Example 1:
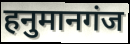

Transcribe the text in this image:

हनुमानगंज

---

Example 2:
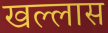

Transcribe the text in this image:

खल्लास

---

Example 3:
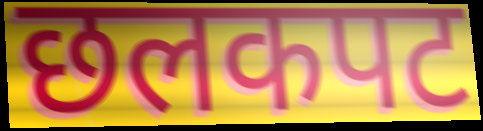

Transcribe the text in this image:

छलकपट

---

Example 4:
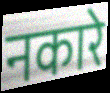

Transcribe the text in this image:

नकारे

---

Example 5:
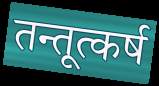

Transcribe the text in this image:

तन्तूत्कर्ष